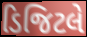
ડિજિટલે